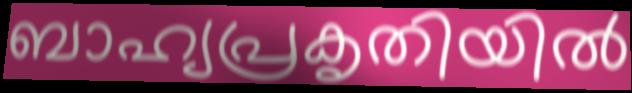
ബാഹ്യപ്രകൃതിയിൽ